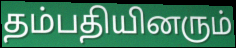
தம்பதியினரும்